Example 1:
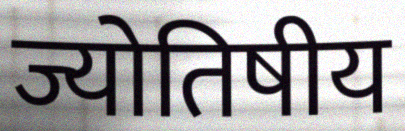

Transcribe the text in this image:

ज्योतिषीय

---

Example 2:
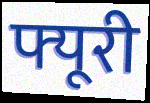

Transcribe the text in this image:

फ्यूरी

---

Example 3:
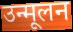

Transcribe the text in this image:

उन्‍मूलन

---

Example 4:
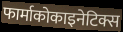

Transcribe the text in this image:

फार्माकोकाइनेटिक्स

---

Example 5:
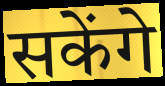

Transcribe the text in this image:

सकेंगे